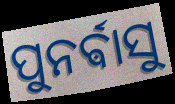
ପୁନର୍ଵାସୁ